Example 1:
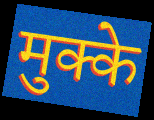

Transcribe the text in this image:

मुक्के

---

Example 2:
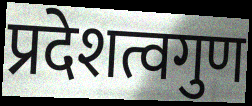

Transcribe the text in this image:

प्रदेशत्वगुण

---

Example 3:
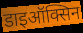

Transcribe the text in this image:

डाइऑक्सिन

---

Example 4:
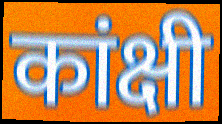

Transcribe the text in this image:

कांक्षी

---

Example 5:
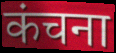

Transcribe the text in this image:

कंचना